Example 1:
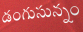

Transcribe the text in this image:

డంగుసున్నం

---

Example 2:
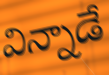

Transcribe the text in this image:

విన్నాడే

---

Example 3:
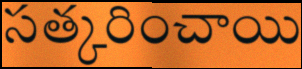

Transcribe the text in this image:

సత్కరించాయి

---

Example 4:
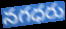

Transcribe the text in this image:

నగధరు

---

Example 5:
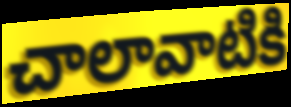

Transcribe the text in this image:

చాలావాటికి